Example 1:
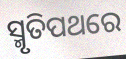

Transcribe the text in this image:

ସ୍ମୃତିପଥରେ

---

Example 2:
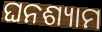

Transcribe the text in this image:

ଘନଶ୍ୟାମ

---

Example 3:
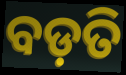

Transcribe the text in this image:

ବଡ଼ତି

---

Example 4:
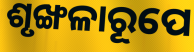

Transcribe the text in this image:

ଶୃଙ୍ଖଳାରୂପେ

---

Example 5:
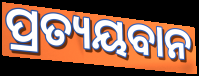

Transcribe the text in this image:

ପ୍ରତ୍ୟୟବାନ